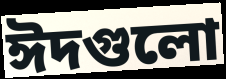
ঈদগুলো